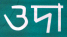
ওদা